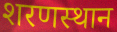
शरणस्थान